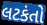
લટકંતો